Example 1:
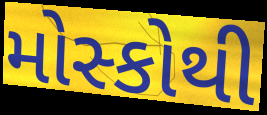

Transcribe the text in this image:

મોસ્કોથી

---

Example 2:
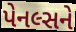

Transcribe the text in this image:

પેનલ્સને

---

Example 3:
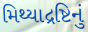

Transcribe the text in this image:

મિથ્યાદ્રષ્ટિનું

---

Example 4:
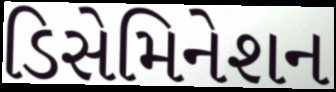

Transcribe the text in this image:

ડિસેમિનેશન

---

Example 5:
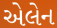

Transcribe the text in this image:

એલેન